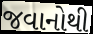
જવાનોથી